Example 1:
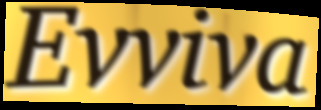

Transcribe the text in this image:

Evviva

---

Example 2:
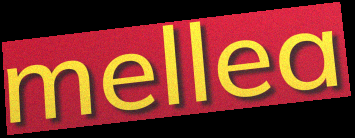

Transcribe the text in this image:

mellea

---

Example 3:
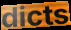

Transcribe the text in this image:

dicts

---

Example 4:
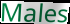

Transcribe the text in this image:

Males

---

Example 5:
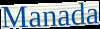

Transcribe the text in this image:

Manada